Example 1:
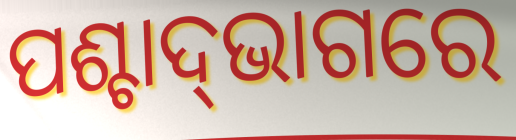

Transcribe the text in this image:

ପଶ୍ଚାଦ୍‌ଭାଗରେ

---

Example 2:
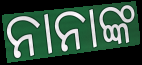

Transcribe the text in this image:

ନାନାଙ୍କ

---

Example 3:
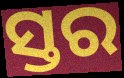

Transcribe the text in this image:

ସ୍ତର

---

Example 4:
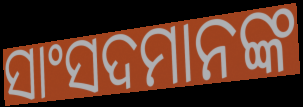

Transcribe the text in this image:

ସାଂସଦମାନଙ୍କ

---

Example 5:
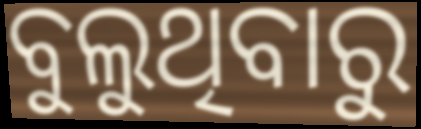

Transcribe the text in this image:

ବୁଲୁଥିବାରୁ